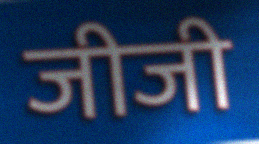
जीजी